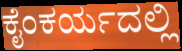
ಕೈಂಕರ್ಯದಲ್ಲಿ